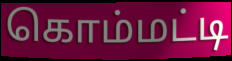
கொம்மட்டி